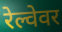
रेल्वेवर